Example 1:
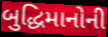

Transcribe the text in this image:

બુદ્ધિમાનોની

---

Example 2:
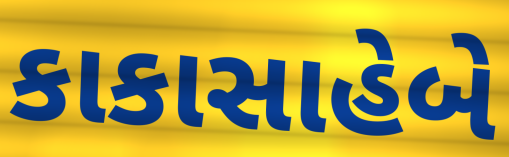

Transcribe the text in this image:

કાકાસાહેબે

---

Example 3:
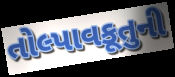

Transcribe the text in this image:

તોલ્પાવકૂતુની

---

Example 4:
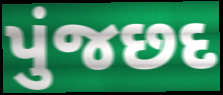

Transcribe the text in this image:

પુંજછદ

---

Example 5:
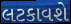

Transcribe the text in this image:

લટકાવશે